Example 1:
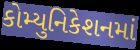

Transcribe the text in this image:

કોમ્યુનિકેશનમાં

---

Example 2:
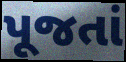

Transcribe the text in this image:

પૂજતાં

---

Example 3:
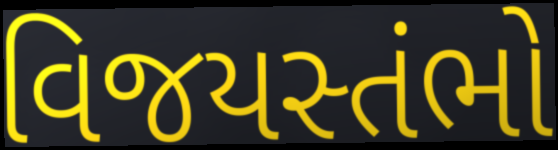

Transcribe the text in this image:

વિજયસ્તંભો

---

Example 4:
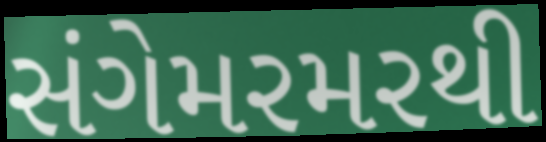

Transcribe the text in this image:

સંગેમરમરથી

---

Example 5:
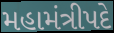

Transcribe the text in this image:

મહામંત્રીપદે